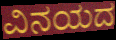
ವಿನಯದ